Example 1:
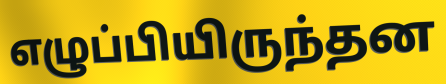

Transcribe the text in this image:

எழுப்பியிருந்தன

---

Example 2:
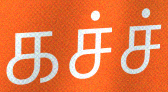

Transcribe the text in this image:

கச்ச்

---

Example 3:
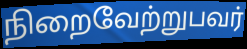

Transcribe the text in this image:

நிறைவேற்றுபவர்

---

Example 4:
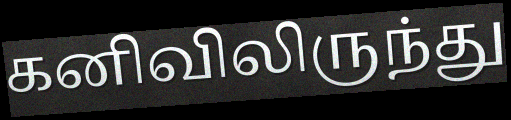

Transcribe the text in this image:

கனிவிலிருந்து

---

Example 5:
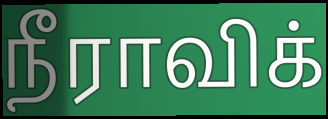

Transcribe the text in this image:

நீராவிக்